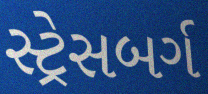
સ્ટ્રેસબર્ગ